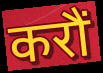
करौं